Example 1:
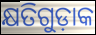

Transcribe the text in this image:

କ୍ଷତିଗୁଡ଼ାକ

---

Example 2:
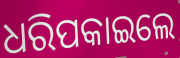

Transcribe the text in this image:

ଧରିପକାଇଲେ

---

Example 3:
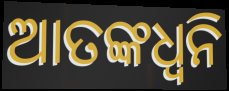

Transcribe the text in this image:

ଆତଙ୍କଧ୍ଵନି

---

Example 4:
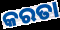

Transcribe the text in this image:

କରତା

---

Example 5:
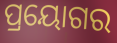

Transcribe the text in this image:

ପ୍ରୟୋଗର